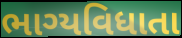
ભાગ્યવિધાતા